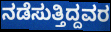
ನಡೆಸುತ್ತಿದ್ದವರ